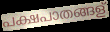
പക്ഷപാതങ്ങള്